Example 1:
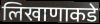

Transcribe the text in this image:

लिखाणाकडे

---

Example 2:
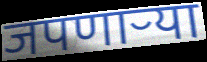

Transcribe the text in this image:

जपणाऱ्या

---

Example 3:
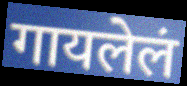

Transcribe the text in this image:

गायलेलं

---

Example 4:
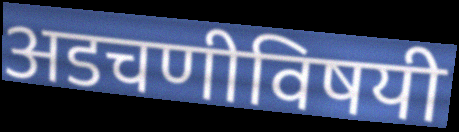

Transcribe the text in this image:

अडचणीविषयी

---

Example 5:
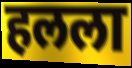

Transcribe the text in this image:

हलला